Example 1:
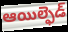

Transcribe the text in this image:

ఆయిల్ఫెడ్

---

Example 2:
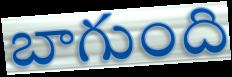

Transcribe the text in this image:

బాగుంది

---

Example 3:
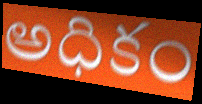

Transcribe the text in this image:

అధికం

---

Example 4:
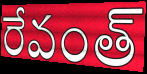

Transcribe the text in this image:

రేవంత్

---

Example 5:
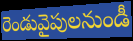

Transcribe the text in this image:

రెండువైపులనుండీ